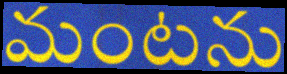
మంటను